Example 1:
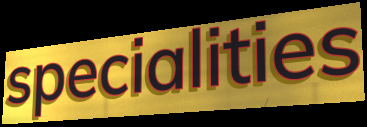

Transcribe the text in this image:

specialities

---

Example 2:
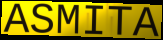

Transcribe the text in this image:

ASMITA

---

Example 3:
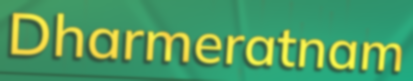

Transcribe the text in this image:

Dharmeratnam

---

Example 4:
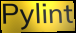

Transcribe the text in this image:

Pylint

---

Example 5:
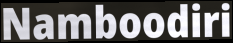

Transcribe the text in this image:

Namboodiri